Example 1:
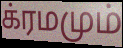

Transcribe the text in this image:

க்ரமமும்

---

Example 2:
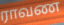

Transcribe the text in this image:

ராவண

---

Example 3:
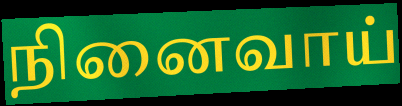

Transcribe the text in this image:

நினைவாய்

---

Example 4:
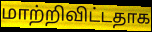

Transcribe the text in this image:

மாற்றிவிட்டதாக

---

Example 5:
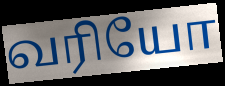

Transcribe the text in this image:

வரியோ